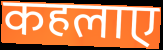
कहलाए